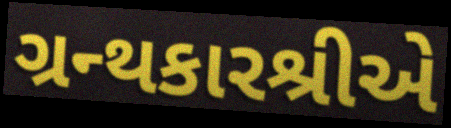
ગ્રન્થકારશ્રીએ